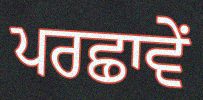
ਪਰਛਾਵੇਂ